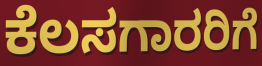
ಕೆಲಸಗಾರರಿಗೆ